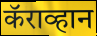
कॅराव्हान